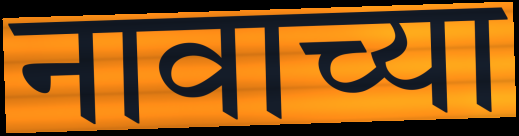
नावाच्या